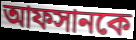
আফসানকে